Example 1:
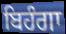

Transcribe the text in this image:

ਬਿਹੰਗਾ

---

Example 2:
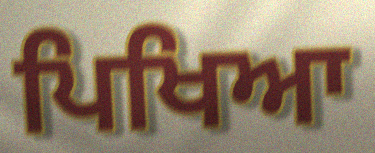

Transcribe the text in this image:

ਪਿਖਿਆ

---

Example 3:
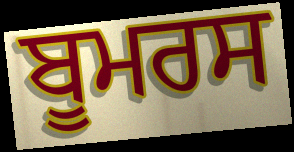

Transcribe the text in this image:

ਬੂਮਰਸ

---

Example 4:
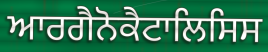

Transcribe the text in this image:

ਆਰਗੈਨੋਕੈਟਾਲਿਸਿਸ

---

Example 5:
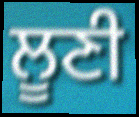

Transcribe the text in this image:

ਲੂਣੀ